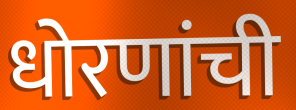
धोरणांची